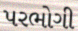
પરભોગી